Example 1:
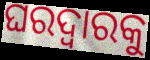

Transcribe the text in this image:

ଘରଦ୍ୱାରକୁ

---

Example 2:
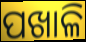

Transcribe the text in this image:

ପଖାଳି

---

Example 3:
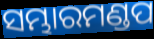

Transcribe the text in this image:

ସମ୍ଭାରମଣ୍ଡପ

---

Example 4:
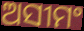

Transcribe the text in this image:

ଅସୀମଂ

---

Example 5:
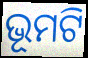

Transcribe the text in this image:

ଭୂମଟି